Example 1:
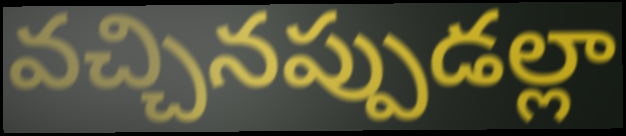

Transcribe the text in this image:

వచ్చినప్పుడల్లా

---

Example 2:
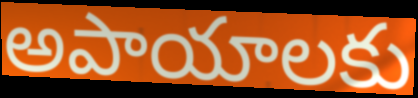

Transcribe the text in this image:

అపాయాలకు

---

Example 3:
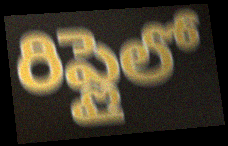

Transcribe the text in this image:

రిప్లైలో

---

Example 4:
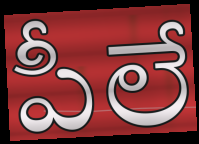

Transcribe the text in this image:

పీలే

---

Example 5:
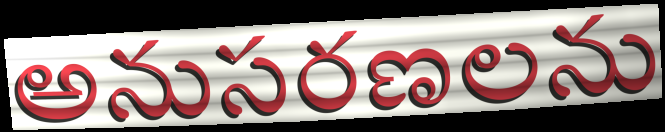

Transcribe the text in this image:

అనుసరణలను